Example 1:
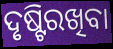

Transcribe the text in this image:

ଦୃଷ୍ଟିରଖିବା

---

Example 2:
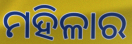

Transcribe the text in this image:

ମହିଳାର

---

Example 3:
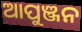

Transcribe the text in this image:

ଆପୁଞ୍ଜନ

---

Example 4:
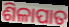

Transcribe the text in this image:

ଶିଳାପାତ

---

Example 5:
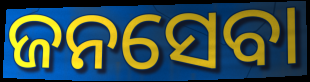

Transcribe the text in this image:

ଜନସେବା